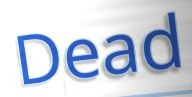
Dead